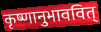
कृष्णानुभाववित्